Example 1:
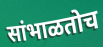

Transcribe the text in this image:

सांभाळतोच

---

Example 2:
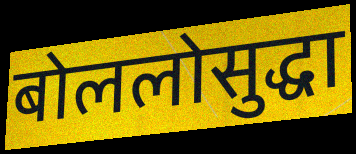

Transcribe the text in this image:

बोललोसुद्धा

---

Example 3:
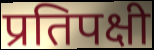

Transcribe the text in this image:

प्रतिपक्षी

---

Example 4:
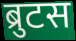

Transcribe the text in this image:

ब्रुटस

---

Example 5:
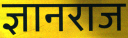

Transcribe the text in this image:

ज्ञानराज